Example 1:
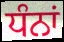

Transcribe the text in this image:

ਧੰਨਾਂ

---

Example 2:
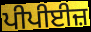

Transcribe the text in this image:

ਪੀਪੀਈਜ਼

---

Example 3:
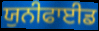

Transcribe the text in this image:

ਯੁਨੀਫਾਈਡ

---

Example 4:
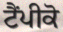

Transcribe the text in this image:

ਟੈਂਪੀਕੋ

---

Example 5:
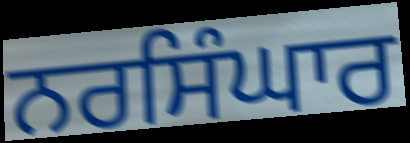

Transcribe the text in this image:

ਨਰਸਿੰਘਾਰ